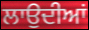
ਲਾਉਦੀਆਂ